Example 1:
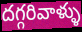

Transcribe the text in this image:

దగ్గరివాళ్ళు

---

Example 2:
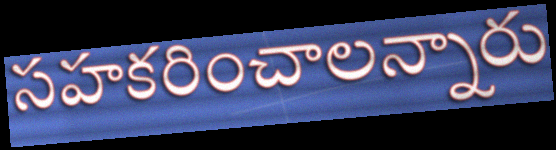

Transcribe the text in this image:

సహకరించాలన్నారు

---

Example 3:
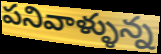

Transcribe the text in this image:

పనివాళ్ళున్న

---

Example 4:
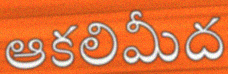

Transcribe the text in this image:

ఆకలిమీద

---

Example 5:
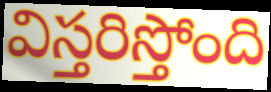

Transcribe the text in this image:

విస్తరిస్తోంది